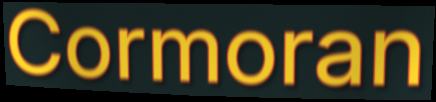
Cormoran